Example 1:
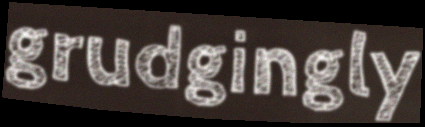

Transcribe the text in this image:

grudgingly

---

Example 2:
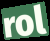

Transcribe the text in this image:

rol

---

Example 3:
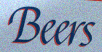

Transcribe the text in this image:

Beers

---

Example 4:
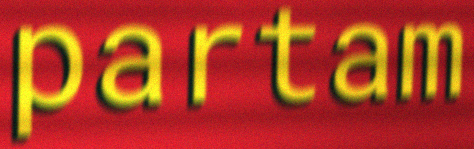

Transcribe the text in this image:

partam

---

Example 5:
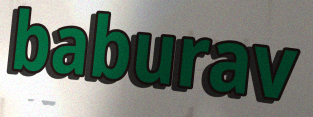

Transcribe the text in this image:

baburav